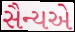
સૈન્યએ